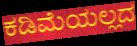
ಕಡಿಮೆಯಲ್ಲದ